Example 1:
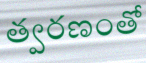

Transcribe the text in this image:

త్వరణంతో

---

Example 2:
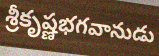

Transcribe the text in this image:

శ్రీకృష్ణభగవానుడు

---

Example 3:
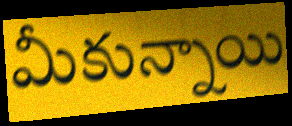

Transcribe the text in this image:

మీకున్నాయి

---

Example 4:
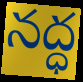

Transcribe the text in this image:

నద్ధ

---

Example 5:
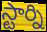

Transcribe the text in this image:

స్టార్ని